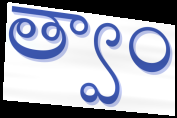
త్వాం